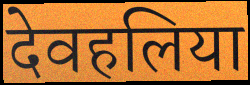
देवहलिया